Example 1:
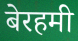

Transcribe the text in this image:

बेरहमी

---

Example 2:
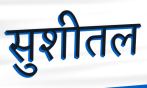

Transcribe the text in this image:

सुशीतल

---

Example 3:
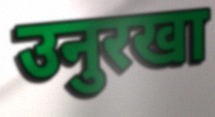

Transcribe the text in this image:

उनुरखा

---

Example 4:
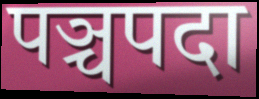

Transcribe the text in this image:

पञ्चपदा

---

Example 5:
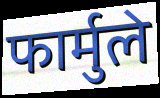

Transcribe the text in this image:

फार्मुले